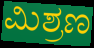
ಮಿಶ್ರಣ